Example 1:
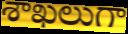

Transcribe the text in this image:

శాఖలుగా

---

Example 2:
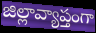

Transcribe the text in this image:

జిల్లావ్యాప్తంగా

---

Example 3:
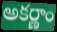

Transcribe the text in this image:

అకర్ణాం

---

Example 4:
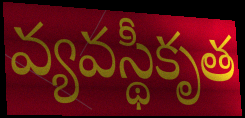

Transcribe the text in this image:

వ్యవస్థీకృత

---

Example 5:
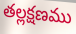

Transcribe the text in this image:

తల్లక్షణము